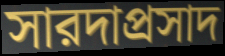
সারদাপ্রসাদ